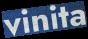
vinita